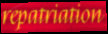
repatriation